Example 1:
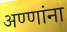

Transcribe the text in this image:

अण्णांना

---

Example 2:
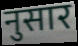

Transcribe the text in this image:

नुसार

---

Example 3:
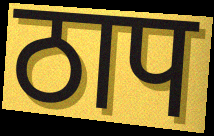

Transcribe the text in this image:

ठाप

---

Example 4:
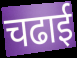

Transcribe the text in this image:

चढाई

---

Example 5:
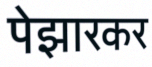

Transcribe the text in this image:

पेझारकर